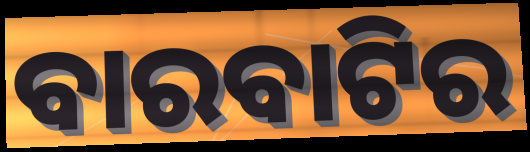
ବାରବାଟିର